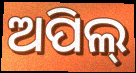
ଅପିଲ୍